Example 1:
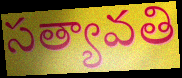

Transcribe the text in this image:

సత్యావతి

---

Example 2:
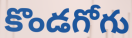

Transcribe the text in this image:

కొండగోగు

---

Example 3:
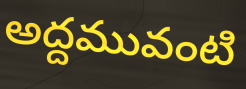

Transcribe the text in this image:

అద్దమువంటి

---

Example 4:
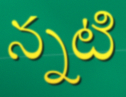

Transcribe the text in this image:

న్నటి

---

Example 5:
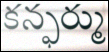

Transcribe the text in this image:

కన్ఫర్ము